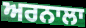
ਅਰਨਾਲਾ